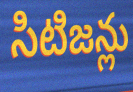
సిటిజన్లు